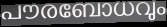
പൗരബോധവും